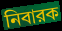
নিবারক